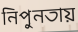
নিপুনতায়